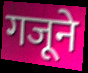
गजूने